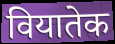
वियातेक